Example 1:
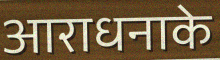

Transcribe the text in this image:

आराधनाके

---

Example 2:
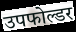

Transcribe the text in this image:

उपफोल्डर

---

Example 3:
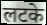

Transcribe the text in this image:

लटके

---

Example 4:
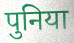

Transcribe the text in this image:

पुनिया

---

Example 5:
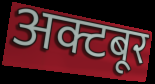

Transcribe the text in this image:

अक्टबूर